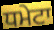
ਧਮੇਟਾ